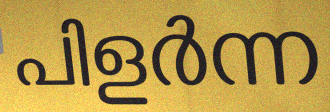
പിളർന്ന